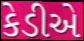
કેડીએ